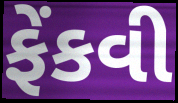
ફેંકવી